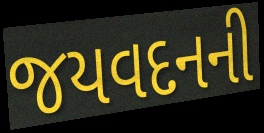
જયવદનની